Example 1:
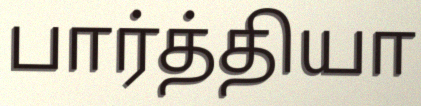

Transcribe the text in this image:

பார்த்தியா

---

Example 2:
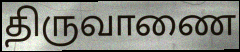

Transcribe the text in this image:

திருவாணை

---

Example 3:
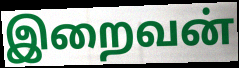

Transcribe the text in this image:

இறைவன்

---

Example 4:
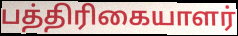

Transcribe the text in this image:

பத்திரிகையாளர்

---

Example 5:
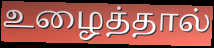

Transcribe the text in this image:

உழைத்தால்